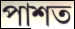
পাশত